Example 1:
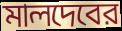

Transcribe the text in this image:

মালদেবের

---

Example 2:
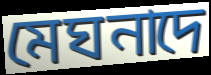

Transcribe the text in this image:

মেঘনাদে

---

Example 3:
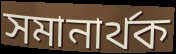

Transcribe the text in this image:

সমানার্থক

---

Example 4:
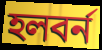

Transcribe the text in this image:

হলবর্ন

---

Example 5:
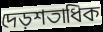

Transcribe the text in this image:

দেড়শতাধিক